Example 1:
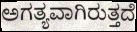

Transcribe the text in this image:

ಅಗತ್ಯವಾಗಿರುತ್ತದೆ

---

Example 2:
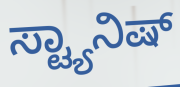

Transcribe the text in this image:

ಸ್ಟ್ಯಾನಿಷ್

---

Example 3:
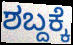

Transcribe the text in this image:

ಶಬ್ದಕ್ಕೆ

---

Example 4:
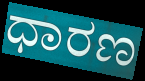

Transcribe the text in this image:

ಧಾರಣ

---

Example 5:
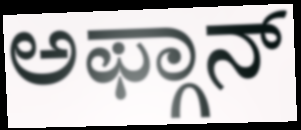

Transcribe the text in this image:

ಅಫ್ಗಾನ್